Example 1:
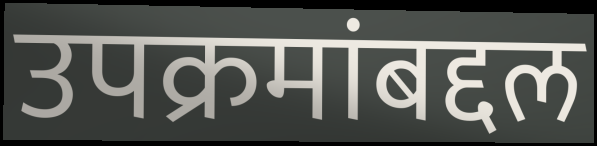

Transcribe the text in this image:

उपक्रमांबद्दल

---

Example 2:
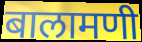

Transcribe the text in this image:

बालामणी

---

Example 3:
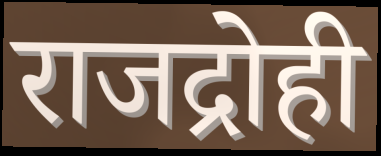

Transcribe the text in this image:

राजद्रोही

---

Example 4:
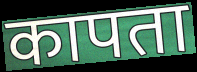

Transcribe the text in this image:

कापता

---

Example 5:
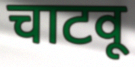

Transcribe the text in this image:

चाटवू